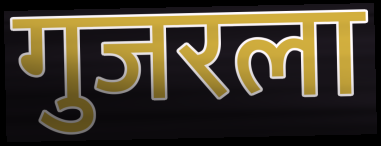
गुजरला